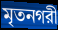
মৃতনগরী